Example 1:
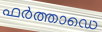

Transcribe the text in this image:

ഫർത്താഡെ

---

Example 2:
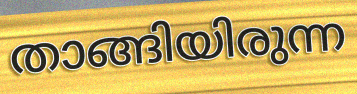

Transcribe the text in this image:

താങ്ങിയിരുന്ന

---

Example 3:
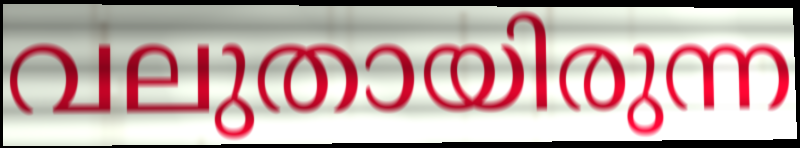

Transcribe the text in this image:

വലുതായിരുന്ന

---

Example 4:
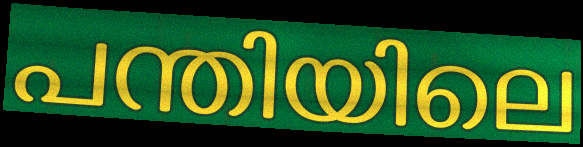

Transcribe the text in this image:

പന്തിയിലെ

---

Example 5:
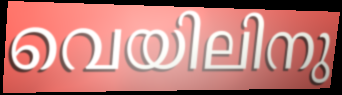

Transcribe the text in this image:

വെയിലിനു